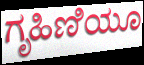
ಗೃಹಿಣಿಯೂ